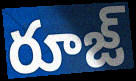
రూజ్